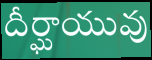
దీర్ఘాయువు